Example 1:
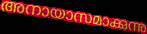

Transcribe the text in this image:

അനായാസമാക്കുന്നു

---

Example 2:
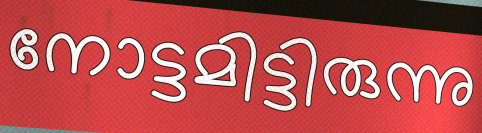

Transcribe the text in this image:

നോട്ടമിട്ടിരുന്നു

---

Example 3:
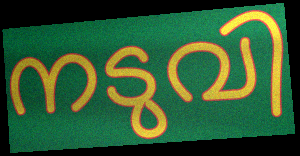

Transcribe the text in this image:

നടുവി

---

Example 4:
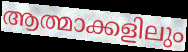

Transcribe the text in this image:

ആത്മാക്കളിലും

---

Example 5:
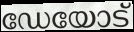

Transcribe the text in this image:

ഡേയോട്